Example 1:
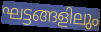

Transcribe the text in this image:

ഘട്ടങ്ങളിലും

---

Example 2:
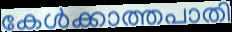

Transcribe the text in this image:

കേൾക്കാത്തപാതി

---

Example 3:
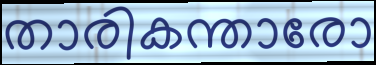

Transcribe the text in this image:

താരികന്താരോ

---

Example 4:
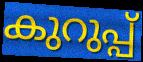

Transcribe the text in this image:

കുറുപ്പ്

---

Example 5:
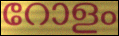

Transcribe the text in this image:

റോളം